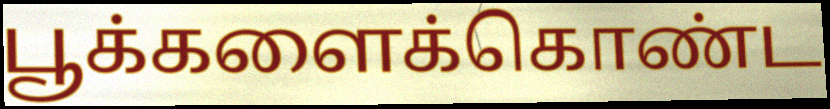
பூக்களைக்கொண்ட